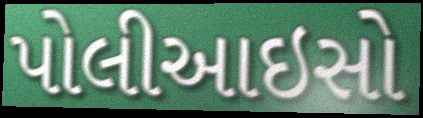
પોલીઆઇસો